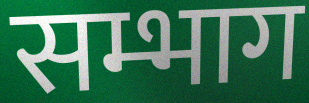
सम्भाग